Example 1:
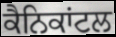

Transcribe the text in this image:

ਕੈਨਿਕਾਂਟਲ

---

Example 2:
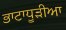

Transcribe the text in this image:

ਭਾਟਾਧੂੜੀਆ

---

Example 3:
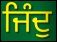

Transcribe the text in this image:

ਜਿੰਦੁ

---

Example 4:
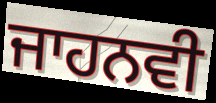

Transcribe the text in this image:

ਜਾਹਨਵੀ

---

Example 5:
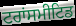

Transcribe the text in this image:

ਟਰਾਂਸਮੀਟਿਡ